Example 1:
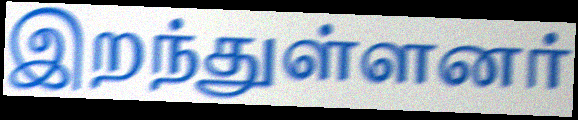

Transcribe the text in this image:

இறந்துள்ளனர்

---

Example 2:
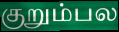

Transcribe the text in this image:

குறும்பல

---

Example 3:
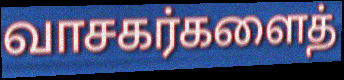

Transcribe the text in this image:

வாசகர்களைத்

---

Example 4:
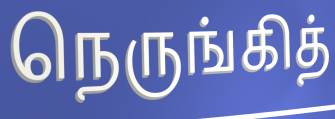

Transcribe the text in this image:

நெருங்கித்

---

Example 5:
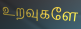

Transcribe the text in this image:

உறவுகளே